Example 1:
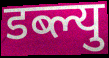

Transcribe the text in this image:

डब्ल्यु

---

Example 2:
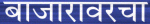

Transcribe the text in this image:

बाजारावरचा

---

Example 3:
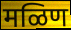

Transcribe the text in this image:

मळिण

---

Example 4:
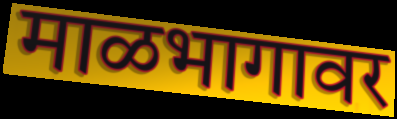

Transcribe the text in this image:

माळभागावर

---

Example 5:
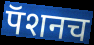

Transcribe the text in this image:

पॅशनच